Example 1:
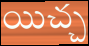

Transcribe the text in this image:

యిచ్చ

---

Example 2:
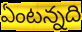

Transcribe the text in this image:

ఏంటన్నది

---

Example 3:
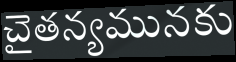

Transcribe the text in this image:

చైతన్యమునకు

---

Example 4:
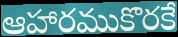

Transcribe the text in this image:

ఆహారముకొరకే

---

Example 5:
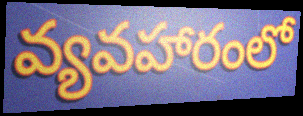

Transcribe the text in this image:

వ్యవహారంలో